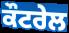
ਕੌਟਰੇਲ